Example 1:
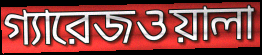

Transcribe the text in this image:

গ্যারেজওয়ালা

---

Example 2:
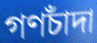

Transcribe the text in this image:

গণচাঁদা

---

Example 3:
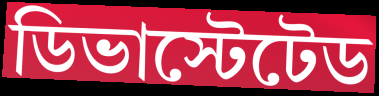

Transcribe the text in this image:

ডিভাস্টেটেড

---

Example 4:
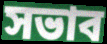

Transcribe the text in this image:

সভাব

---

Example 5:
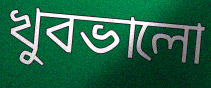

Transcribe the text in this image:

খুবভালো